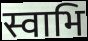
स्वाभि